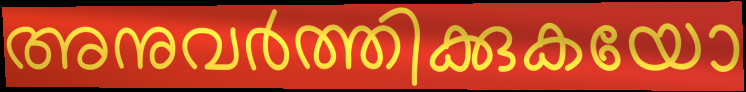
അനുവർത്തിക്കുകയോ